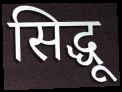
सिद्धू